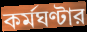
কর্মঘণ্টার